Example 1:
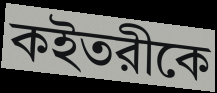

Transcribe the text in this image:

কইতরীকে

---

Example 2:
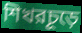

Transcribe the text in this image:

শিখরচূড়ে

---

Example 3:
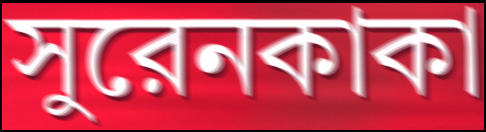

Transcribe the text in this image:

সুরেনকাকা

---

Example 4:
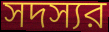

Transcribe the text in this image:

সদস্যর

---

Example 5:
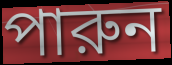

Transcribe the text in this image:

পারুন